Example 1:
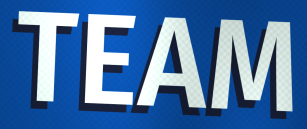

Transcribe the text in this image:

TEAM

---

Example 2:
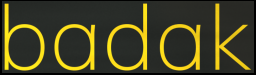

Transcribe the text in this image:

badak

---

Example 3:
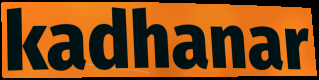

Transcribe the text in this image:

kadhanar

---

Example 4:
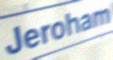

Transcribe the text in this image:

Jeroham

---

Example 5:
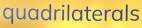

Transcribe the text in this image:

quadrilaterals